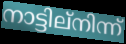
നാട്ടില്നിന്ന്